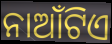
ନାଆଁଟିଏ